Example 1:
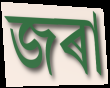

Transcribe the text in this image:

জৰা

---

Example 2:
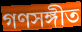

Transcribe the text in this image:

গণসঙ্গীত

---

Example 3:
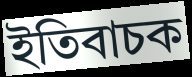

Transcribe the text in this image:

ইতিবাচক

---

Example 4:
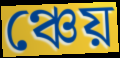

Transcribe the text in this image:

ঞ্চেয়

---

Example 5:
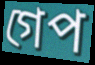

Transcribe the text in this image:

গেপ